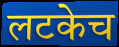
लटकेच